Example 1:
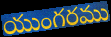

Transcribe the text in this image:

యుంగరము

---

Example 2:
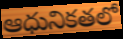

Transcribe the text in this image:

ఆధునికతలో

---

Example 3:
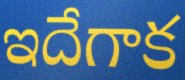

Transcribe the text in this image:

ఇదేగాక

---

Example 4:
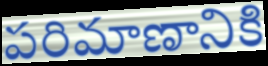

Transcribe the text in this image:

పరిమాణానికి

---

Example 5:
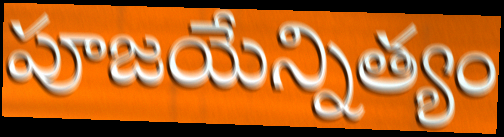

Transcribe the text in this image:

పూజయేన్నిత్యం